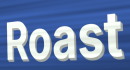
Roast